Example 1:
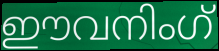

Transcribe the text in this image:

ഈവനിംഗ്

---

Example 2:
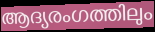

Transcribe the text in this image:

ആദ്യരംഗത്തിലും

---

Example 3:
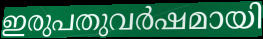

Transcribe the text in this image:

ഇരുപതുവർഷമായി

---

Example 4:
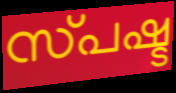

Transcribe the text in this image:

സ്‌പഷ്ട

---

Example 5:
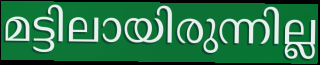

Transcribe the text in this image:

മട്ടിലായിരുന്നില്ല